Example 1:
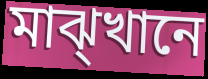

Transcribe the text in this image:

মাঝ্খানে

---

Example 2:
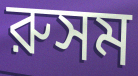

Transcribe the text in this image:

রুসম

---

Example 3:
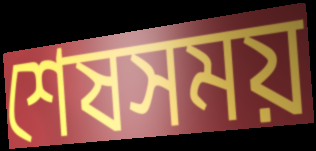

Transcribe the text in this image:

শেষসময়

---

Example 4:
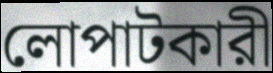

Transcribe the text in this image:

লোপাটকারী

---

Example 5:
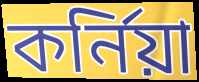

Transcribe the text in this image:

কর্নিয়া